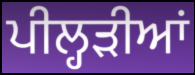
ਪੀਲ੍ਹੜੀਆਂ